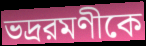
ভদ্ররমণীকে